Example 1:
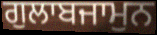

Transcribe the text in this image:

ਗੁਲਾਬਜਾਮੁਨ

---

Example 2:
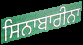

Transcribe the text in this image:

ਸਿਨਾਬਾਰੀਨਾ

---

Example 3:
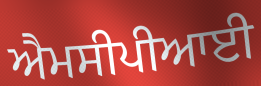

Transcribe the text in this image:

ਐਮਸੀਪੀਆਈ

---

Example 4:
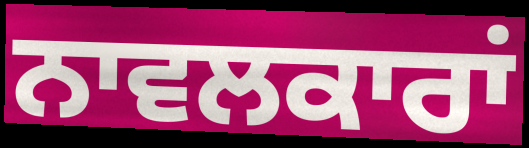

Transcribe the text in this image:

ਨਾਵਲਕਾਰਾਂ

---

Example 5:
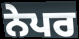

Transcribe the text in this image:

ਨੇਪਰ